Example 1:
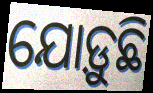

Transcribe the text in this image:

ଯୋଡ଼ୁଛି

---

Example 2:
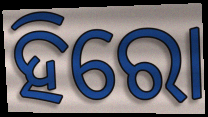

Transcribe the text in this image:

ହିରୋ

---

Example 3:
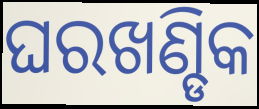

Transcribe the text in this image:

ଘରଖଣ୍ଡିକ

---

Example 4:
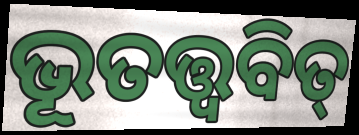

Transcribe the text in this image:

ଭୂତତ୍ତ୍ୱବିତ୍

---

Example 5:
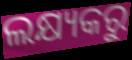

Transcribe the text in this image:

ଲକ୍ଷ୍ୟକରୁ